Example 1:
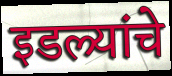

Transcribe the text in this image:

इडल्यांचे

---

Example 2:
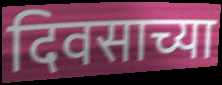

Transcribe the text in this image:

दिवसाच्या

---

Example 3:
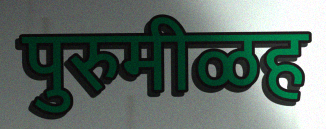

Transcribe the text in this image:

पुरुमीळह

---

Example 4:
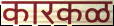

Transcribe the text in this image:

कारकळ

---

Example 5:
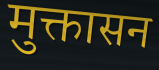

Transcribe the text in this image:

मुक्तासन